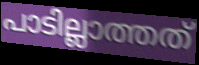
പാടില്ലാത്തത്